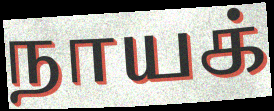
நாயக்